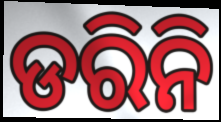
ଡରିନି